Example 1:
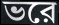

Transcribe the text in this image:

ভরে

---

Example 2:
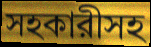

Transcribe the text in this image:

সহকারীসহ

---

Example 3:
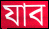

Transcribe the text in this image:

যাব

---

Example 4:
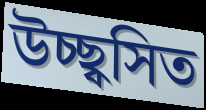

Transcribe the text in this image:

উচ্ছ্বসিত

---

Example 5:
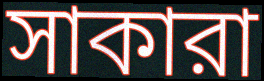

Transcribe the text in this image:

সাকারা